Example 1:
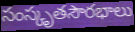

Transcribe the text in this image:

సంస్కృతసౌరభాలు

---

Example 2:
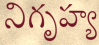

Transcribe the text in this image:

నిగృహ్య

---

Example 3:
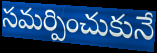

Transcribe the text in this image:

సమర్పించుకునే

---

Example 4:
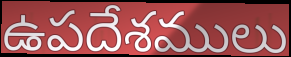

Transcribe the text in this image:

ఉపదేశములు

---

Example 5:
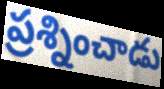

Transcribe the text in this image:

ప్రశ్నించాడు